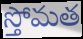
స్తోమత